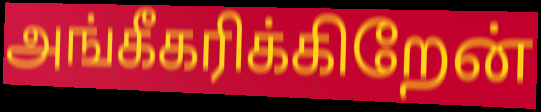
அங்கீகரிக்கிறேன்